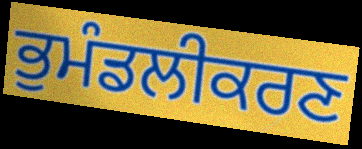
ਭੁਮੰਡਲੀਕਰਣ